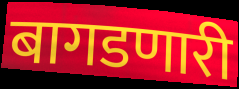
बागडणारी